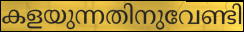
കളയുന്നതിനുവേണ്ടി